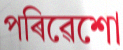
পৰিৱেশো